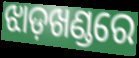
ଝାଡ଼ଖଣ୍ଡରେ